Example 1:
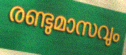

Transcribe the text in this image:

രണ്ടുമാസവും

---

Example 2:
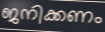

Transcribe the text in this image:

ജനിക്കണം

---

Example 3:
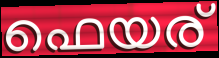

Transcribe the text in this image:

ഫെയര്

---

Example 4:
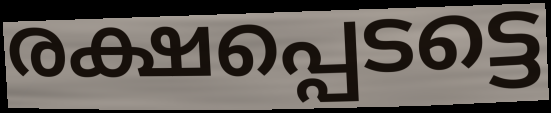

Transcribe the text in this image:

രക്ഷപ്പെടട്ടെ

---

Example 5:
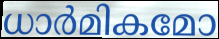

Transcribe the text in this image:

ധാർമികമോ